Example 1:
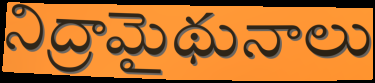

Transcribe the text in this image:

నిద్రామైథునాలు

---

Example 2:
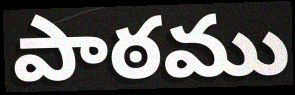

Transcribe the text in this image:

పాఠము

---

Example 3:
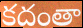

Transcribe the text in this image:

కదంతా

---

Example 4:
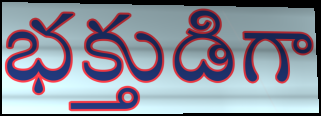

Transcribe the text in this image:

భక్తుడిగా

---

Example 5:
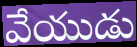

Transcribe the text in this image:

వేయుడు